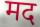
मद